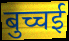
बुच्चई